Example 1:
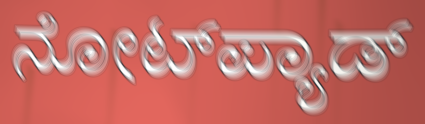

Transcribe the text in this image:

ನೋಟ್‌ಪ್ಯಾಡ್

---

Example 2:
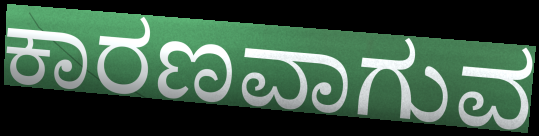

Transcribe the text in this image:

ಕಾರಣವಾಗುವ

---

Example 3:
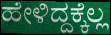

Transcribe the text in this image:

ಹೇಳಿದ್ದಕ್ಕೆಲ್ಲ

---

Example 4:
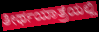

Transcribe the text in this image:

ತೀರ್ಥಯಾತ್ರೆಯಲ್ಲಿ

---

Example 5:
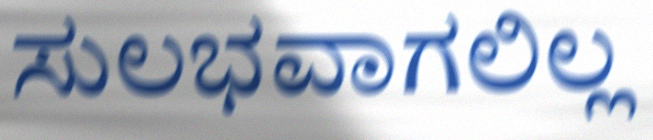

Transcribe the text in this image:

ಸುಲಭವಾಗಲಿಲ್ಲ